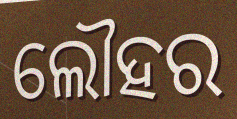
ଲୌହର